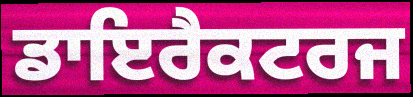
ਡਾਇਰੈਕਟਰਜ